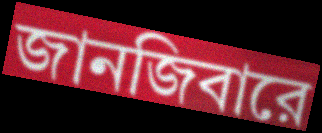
জানজিবারে